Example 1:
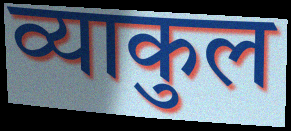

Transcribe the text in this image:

व्याकुल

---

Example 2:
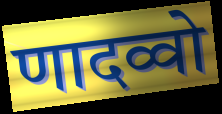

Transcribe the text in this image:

णादव्वो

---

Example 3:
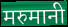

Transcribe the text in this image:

मरुमानी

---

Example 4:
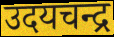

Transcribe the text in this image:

उदयचन्द्र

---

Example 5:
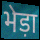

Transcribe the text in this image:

भेड़ा